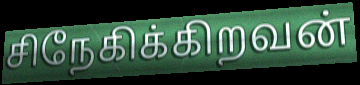
சிநேகிக்கிறவன்